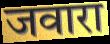
जवारा